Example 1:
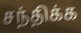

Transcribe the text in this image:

சந்திக்க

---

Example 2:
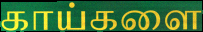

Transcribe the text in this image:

காய்களை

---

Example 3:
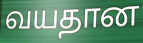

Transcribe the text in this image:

வயதான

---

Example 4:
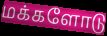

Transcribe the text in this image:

மக்களோடு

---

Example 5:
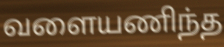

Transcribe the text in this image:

வளையணிந்த